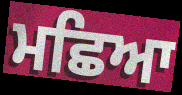
ਮਛਿਆ